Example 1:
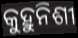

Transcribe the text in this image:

କୁହୁନିଶୀ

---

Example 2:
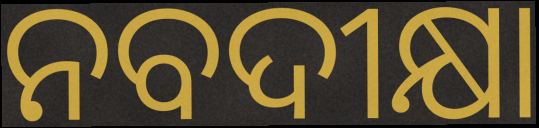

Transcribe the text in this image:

ନବଦୀକ୍ଷା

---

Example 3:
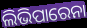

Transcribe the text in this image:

ଲିଭିପାରେନା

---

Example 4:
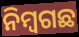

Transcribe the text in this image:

ନିମ୍ୱଗଛ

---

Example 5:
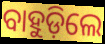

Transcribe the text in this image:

ବାହୁଡ଼ିଲେ